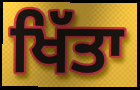
ਖਿੱਤਾ